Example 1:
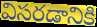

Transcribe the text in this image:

విసరడానికి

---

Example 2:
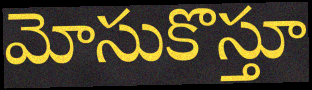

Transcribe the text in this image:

మోసుకొస్తూ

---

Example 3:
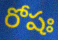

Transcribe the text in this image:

రోషః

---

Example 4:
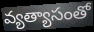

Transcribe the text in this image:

వ్యత్యాసంతో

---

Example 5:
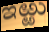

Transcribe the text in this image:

ఇఱ్ఱు